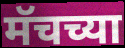
मॅचच्या